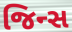
જિન્સ